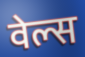
वेल्स